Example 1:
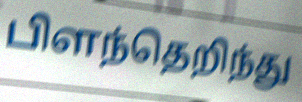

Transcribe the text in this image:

பிளந்தெறிந்து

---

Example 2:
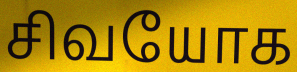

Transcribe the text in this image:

சிவயோக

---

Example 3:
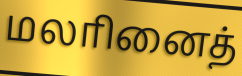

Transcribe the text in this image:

மலரினைத்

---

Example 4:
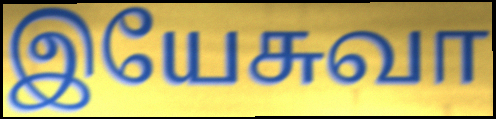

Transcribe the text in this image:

இயேசுவா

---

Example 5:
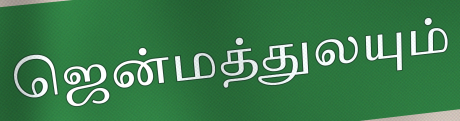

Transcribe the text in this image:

ஜென்மத்துலயும்